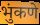
भुंकणे